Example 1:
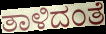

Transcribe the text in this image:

ತಾಳಿದಂತೆ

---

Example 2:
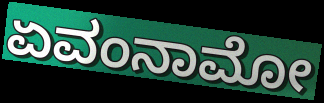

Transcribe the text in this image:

ಏವಂನಾಮೋ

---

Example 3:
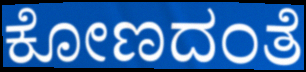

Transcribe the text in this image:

ಕೋಣದಂತೆ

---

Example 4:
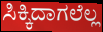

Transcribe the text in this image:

ಸಿಕ್ಕಿದಾಗಲೆಲ್ಲ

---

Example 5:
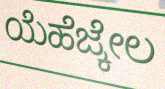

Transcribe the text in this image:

ಯೆಹೆಜ್ಕೇಲ